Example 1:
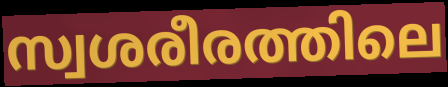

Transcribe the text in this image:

സ്വശരീരത്തിലെ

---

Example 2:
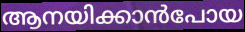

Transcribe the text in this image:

ആനയിക്കാൻപോയ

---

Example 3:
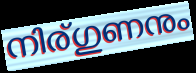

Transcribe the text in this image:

നിര്ഗുണനും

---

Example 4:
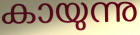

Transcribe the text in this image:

കായുന്നു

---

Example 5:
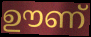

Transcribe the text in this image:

ഊണ്